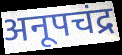
अनूपचंद्र